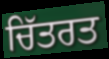
ਚਿੱਤਰਤ